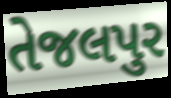
તેજલપુર